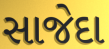
સાજેદા